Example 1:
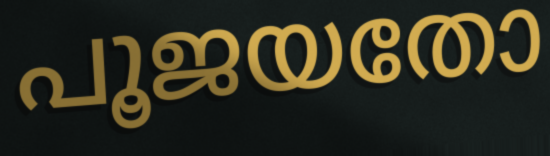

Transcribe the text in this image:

പൂജയതോ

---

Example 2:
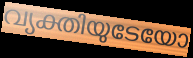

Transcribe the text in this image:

വ്യക്തിയുടേയോ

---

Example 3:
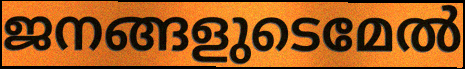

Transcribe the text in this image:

ജനങ്ങളുടെമേൽ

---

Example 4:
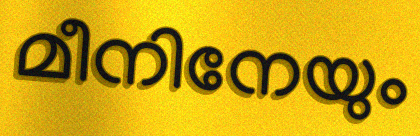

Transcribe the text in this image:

മീനിനേയും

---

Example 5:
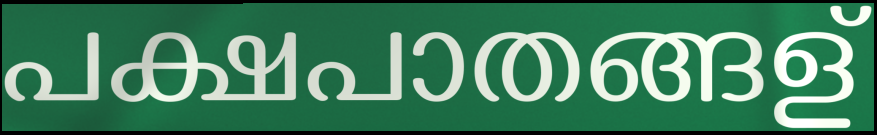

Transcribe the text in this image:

പക്ഷപാതങ്ങള്